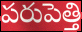
పరుపెత్తి